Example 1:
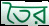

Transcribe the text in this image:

তৈর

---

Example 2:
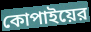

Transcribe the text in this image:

কোপাইয়ের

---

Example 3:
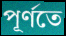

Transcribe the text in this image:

পূর্ণতে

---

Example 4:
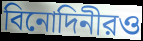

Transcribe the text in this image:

বিনোদিনীরও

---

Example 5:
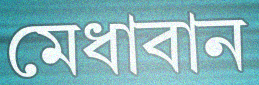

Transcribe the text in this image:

মেধাবান